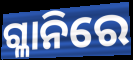
ଗ୍ଳାନିରେ